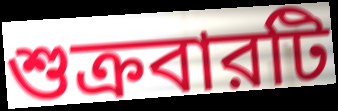
শুক্রবারটি